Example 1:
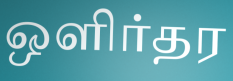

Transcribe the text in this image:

ஒளிர்தர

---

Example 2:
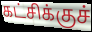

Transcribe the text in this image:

கட்சிக்குச்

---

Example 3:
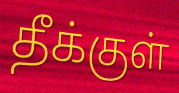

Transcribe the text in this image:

தீக்குள்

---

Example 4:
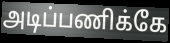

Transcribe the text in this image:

அடிப்பணிக்கே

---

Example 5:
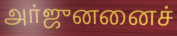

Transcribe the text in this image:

அர்ஜுனனைச்